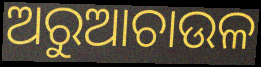
ଅରୁଆଚାଉଳ